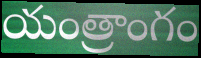
యంత్రాంగం